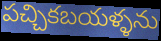
పచ్చికబయళ్ళను